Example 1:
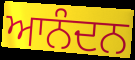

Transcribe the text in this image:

ਆਨੰਦਨ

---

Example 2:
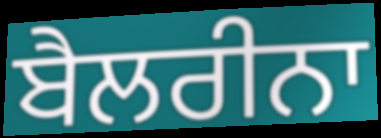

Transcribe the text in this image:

ਬੈਲਰੀਨਾ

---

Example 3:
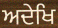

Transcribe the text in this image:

ਅਦੇਖਿ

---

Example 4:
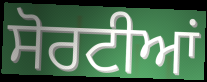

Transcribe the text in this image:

ਸੋਰਟੀਆਂ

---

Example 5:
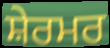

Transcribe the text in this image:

ਸ਼ੇਰਮਰ